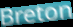
Breton